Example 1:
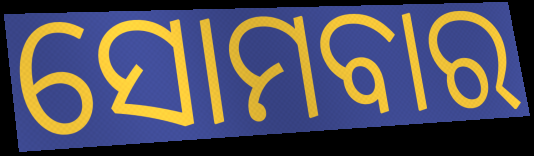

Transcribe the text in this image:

ସୋମବାର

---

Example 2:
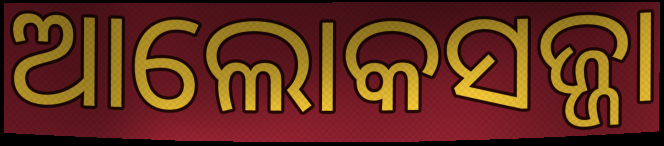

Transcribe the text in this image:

ଆଲୋକସଜ୍ଜା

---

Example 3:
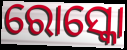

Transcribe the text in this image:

ରୋସ୍କୋ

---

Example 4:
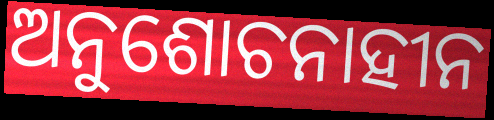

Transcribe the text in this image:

ଅନୁଶୋଚନାହୀନ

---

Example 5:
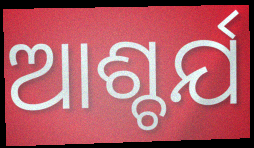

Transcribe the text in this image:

ଆଶ୍ଚର୍ଯ